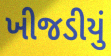
ખીજડીયું